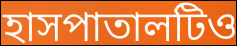
হাসপাতালটিও